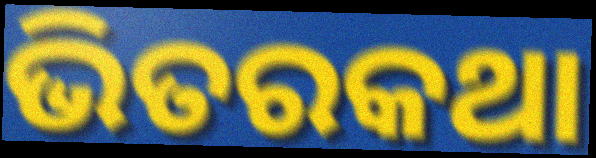
ଭିତରକଥା